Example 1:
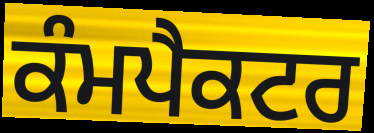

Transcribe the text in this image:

ਕੰਮਪੈਕਟਰ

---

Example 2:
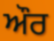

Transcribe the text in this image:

ਔਰ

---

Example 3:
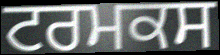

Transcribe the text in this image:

ਟਰਮਕਸ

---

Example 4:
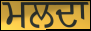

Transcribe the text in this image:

ਮਲਦਾ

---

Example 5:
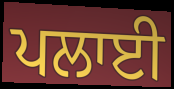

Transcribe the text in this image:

ਪਲਾਈ